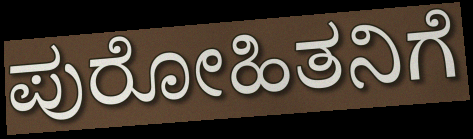
ಪುರೋಹಿತನಿಗೆ